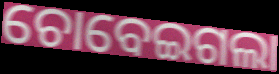
ଚୋବେଇଗଲା